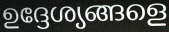
ഉദ്ദേശ്യങ്ങളെ